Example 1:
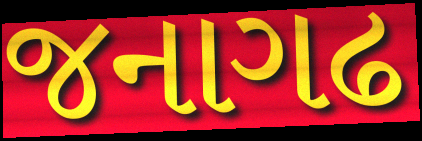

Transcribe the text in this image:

જનાગઢ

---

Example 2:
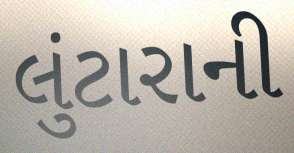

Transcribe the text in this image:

લુંટારાની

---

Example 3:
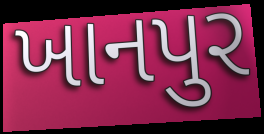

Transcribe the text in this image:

ખાનપુર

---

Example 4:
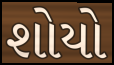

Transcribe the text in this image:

શોયો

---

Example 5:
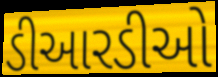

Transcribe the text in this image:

ડીઆરડીઓ